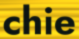
chie